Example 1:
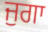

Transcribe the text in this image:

ਜੁਗਾ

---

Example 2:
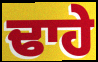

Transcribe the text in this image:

ਢਾਹੇ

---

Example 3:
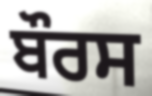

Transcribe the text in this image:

ਬੌਰਸ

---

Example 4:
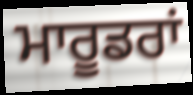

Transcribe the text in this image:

ਮਾਰੂਡਰਾਂ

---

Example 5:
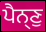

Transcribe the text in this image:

ਪੈਨ੍ਣੁ